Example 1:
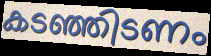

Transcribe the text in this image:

കടഞ്ഞിടണം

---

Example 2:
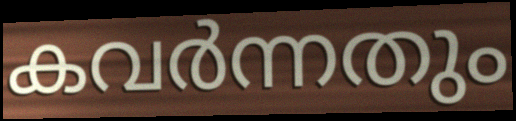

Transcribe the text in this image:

കവർന്നതും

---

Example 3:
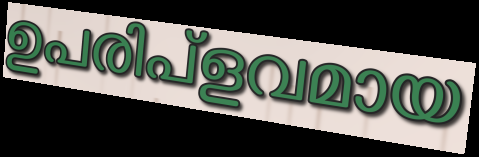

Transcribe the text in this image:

ഉപരിപ്ളവമായ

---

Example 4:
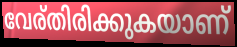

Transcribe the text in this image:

വേര്തിരിക്കുകയാണ്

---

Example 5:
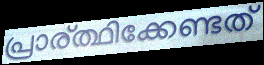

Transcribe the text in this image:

പ്രാര്ത്ഥിക്കേണ്ടത്